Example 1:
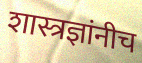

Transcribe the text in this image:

शास्त्रज्ञांनीच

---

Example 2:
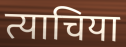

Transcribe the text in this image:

त्याचिया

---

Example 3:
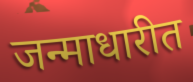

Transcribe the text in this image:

जन्माधारीत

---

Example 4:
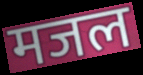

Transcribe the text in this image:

मजल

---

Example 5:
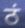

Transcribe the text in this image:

ठं